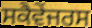
ਸਕੈਵੇਂਜਰਸ